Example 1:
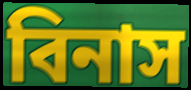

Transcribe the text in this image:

বিনাস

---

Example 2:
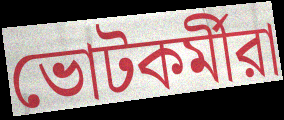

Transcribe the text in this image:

ভোটকর্মীরা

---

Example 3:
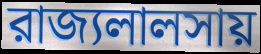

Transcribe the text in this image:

রাজ্যলালসায়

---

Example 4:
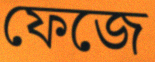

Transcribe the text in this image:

ফেজে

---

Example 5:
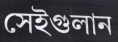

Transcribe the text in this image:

সেইগুলান